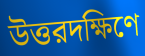
উত্তরদক্ষিণে